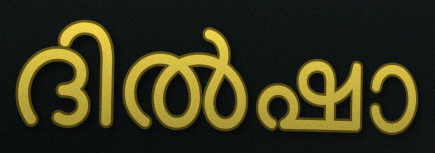
ദിൽഷാ